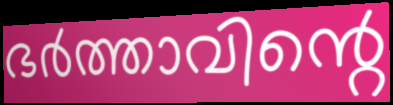
ഭർത്താവിന്റെ